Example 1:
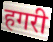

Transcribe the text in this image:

हगरी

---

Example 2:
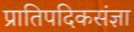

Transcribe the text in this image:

प्रातिपदिकसंज्ञा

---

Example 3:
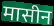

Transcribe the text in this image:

मासीन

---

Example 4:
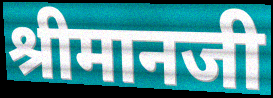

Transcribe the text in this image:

श्रीमानजी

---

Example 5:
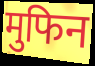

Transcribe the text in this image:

मुफिन